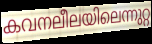
കവനലീലയിലെന്നുറ്റ